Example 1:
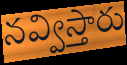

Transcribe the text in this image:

నవ్విస్తారు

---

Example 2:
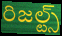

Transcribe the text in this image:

రిజల్ట్స్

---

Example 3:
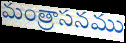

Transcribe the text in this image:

మంత్రాసనము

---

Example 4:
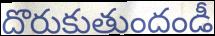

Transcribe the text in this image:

దొరుకుతుందండీ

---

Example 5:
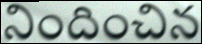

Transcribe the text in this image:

నిందించిన